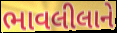
ભાવલીલાને